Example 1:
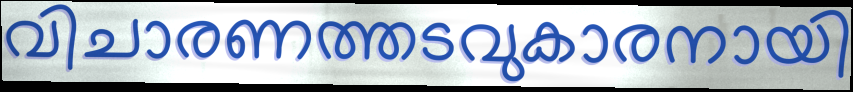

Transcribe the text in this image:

വിചാരണത്തടവുകാരനായി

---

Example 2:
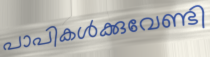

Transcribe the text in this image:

പാപികൾക്കുവേണ്ടി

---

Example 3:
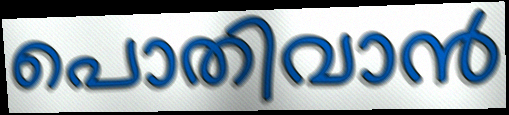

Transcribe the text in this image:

പൊതിവാൻ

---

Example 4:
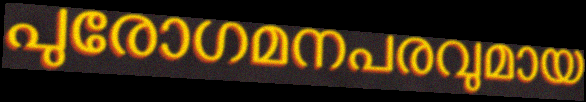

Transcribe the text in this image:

പുരോഗമനപരവുമായ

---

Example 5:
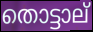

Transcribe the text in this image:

തൊട്ടാല്